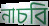
নাচবি